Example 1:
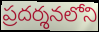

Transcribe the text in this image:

ప్రదర్శనలోని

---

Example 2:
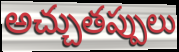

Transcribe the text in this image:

అచ్చుతప్పులు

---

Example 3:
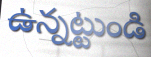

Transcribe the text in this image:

ఉన్నట్టుండి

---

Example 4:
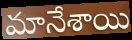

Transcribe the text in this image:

మానేశాయి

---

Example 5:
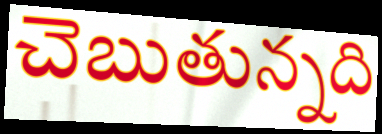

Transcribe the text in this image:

చెబుతున్నది